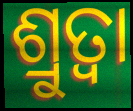
ଶ୍ରୁତ୍ଵା